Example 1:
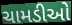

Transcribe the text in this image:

ચામડીઓ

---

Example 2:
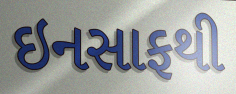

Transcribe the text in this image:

ઇનસાફથી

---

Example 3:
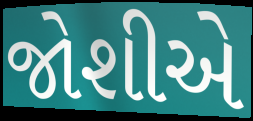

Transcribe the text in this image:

જોશીએ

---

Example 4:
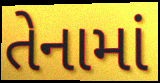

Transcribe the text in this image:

તેનામાં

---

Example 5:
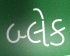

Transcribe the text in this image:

બ્લેક